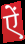
ऐं